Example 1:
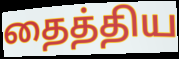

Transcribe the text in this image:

தைத்திய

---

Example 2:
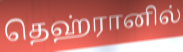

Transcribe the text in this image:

தெஹ்ரானில்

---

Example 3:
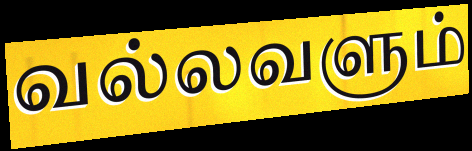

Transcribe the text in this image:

வல்லவளும்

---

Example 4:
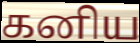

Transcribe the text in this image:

கனிய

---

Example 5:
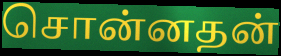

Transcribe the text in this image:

சொன்னதன்